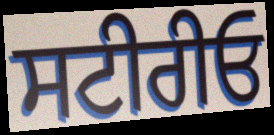
ਸਟੀਰੀਓ